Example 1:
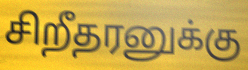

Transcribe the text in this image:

சிறீதரனுக்கு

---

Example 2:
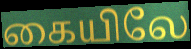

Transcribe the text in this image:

கையிலே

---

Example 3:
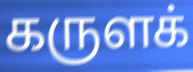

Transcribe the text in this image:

கருளக்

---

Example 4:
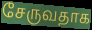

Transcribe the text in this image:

சேருவதாக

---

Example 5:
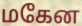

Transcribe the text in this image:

மகேன